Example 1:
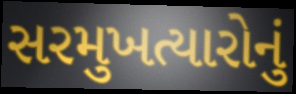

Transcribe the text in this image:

સરમુખત્યારોનું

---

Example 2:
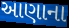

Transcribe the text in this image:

આણાના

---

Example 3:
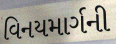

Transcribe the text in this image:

વિનયમાર્ગની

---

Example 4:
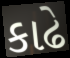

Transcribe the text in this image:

કાઢે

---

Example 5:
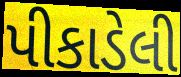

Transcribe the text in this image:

પીકાડેલી